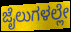
ಜೈಲುಗಳಲ್ಲೇ